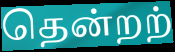
தென்றற்